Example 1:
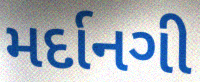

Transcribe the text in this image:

મર્દાનગી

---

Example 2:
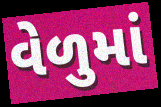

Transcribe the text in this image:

વેળુમાં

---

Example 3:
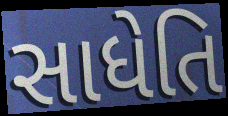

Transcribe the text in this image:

સાધેતિ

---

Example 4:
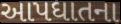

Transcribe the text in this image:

આપઘાતના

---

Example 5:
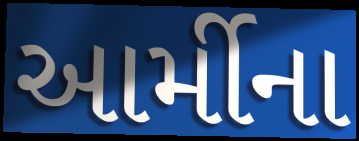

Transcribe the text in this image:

આર્મીના